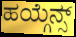
ಹಯ್ಗೆನ್ಸ್